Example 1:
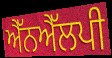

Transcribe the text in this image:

ਐੱਨਐੱਲਪੀ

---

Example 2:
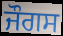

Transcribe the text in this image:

ਜੌਗਸ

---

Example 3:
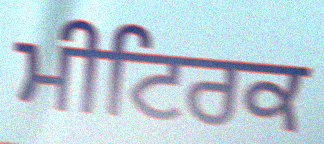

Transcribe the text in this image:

ਮੀਟਿਰਕ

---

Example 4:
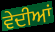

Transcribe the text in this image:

ਵੇਦੀਆਂ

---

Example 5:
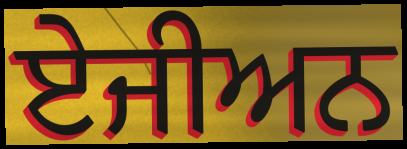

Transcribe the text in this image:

ਏਜੀਅਨ